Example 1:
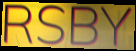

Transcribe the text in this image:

RSBY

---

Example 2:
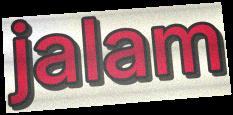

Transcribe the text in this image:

jalam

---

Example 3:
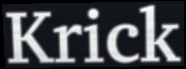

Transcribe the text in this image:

Krick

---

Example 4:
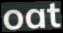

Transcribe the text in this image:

oat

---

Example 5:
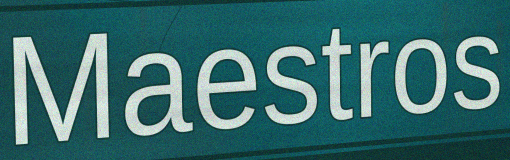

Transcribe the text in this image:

Maestros